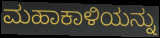
ಮಹಾಕಾಳಿಯನ್ನು